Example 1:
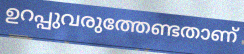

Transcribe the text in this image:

ഉറപ്പുവരുത്തേണ്ടതാണ്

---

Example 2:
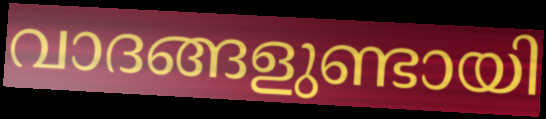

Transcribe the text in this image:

വാദങ്ങളുണ്ടായി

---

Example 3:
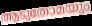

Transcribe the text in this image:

ആടുതോമയും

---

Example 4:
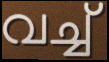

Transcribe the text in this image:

വച്ച്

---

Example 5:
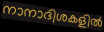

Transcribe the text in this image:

നാനാദിശകളിൽ